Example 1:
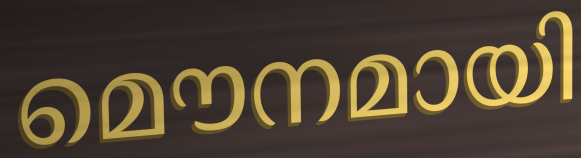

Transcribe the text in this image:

മൌനമായി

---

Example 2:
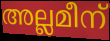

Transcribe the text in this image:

അല്ലമീന്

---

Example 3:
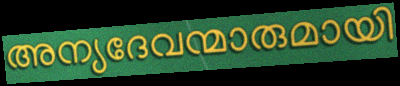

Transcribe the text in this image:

അന്യദേവന്മാരുമായി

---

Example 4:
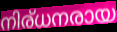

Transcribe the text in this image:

നിര്ധനരായ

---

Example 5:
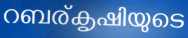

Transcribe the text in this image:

റബര്കൃഷിയുടെ